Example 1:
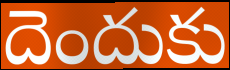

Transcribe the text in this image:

దెందుకు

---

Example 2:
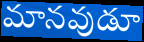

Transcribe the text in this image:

మానవుడూ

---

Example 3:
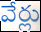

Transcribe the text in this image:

వేర్లు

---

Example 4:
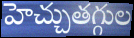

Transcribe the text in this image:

హెచ్చుతగ్గుల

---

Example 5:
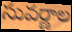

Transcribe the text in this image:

సువర్ణాల